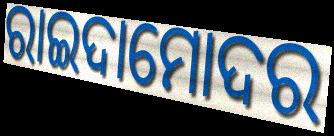
ରାଇଦାମୋଦର